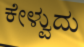
ಕೇಳ್ವುದು